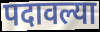
पदावल्या